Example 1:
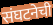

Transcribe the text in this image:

संघटनेची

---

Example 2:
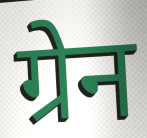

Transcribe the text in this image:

ग्रेन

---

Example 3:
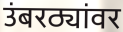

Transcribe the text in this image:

उंबरठ्यांवर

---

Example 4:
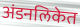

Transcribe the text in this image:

अंडनलिकेत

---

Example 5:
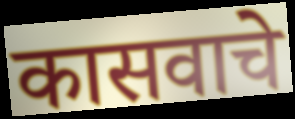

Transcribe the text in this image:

कासवाचे